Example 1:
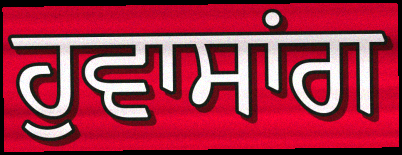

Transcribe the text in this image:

ਹੁਵਾਸਾਂਗ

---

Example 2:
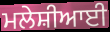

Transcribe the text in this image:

ਮਲੇਸ਼ੀਆਈ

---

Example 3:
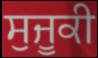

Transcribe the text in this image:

ਸੁਜੂਕੀ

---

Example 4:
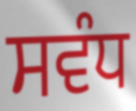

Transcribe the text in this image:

ਸਵੰਧ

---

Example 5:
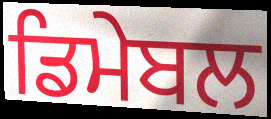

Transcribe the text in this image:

ਡਿਮੇਬਲ